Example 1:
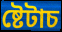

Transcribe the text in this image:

ষ্টেটাচ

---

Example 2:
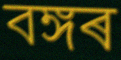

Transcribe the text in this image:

বঙ্গৰ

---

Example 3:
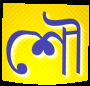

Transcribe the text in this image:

শৌ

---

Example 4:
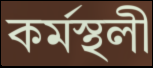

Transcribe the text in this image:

কৰ্মস্থলী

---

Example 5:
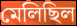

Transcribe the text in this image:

মেলিছিল